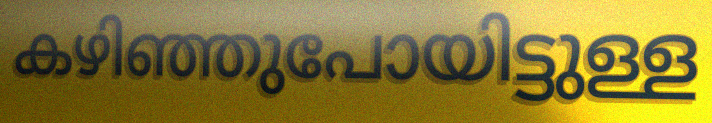
കഴിഞ്ഞുപോയിട്ടുള്ള